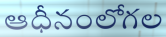
ఆధీనంలోగల